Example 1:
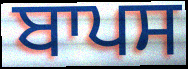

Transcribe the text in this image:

ਬਾਪਸ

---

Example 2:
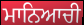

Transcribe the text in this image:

ਮਾਨਿਆਚੀ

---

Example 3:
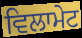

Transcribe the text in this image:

ਵਿਲਾਮੇਟ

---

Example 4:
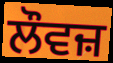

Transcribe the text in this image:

ਲੌਵਜ਼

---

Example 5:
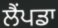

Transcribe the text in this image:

ਲੈਂਪਡਾ